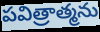
పవిత్రాత్మను